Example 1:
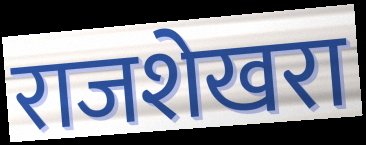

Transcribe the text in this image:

राजशेखरा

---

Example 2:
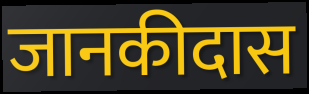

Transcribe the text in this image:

जानकीदास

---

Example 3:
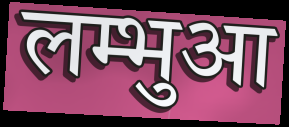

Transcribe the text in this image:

लम्भुआ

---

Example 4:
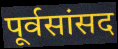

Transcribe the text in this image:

पूर्वसांसद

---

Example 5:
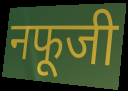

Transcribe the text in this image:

नफूजी